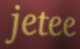
jetee